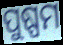
ପୁଷ୍ପମ